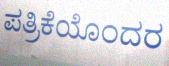
ಪತ್ರಿಕೆಯೊಂದರ